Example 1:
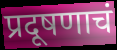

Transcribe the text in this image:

प्रदूषणाचं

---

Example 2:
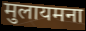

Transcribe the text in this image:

मुलायमना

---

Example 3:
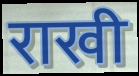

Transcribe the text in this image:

राखी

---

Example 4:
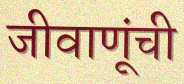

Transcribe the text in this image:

जीवाणूंची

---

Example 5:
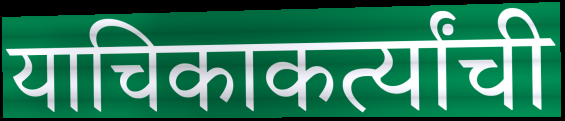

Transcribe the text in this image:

याचिकाकर्त्यांची